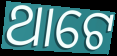
ଥାଟେ